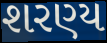
શરણ્ય